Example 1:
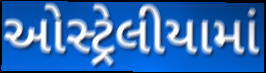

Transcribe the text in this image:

ઓસ્ટ્રેલીયામાં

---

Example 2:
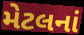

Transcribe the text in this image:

મેટલનાં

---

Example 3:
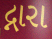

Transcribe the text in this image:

દ્નારા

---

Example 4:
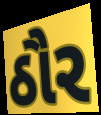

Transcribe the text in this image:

ઠૌર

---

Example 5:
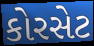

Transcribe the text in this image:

કોરસેટ